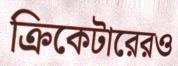
ক্রিকেটারেরও